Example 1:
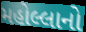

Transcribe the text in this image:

મહોલ્લાનો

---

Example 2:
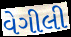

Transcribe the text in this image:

વેગીલી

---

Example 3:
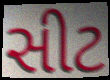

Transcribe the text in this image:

સીટ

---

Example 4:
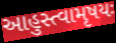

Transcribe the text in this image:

આહુસ્ત્વામૃષયઃ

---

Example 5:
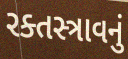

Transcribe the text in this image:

રક્તસ્ત્રાવનું